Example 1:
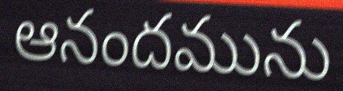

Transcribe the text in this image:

ఆనందమును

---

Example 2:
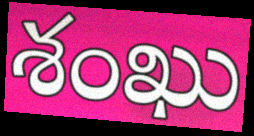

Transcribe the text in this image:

శంఖు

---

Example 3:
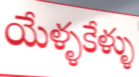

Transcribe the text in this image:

యేళ్ళకేళ్ళు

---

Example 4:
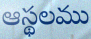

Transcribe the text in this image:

ఆస్థలము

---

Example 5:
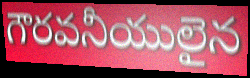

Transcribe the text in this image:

గౌరవనీయులైన